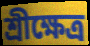
শ্রীক্ষেত্র